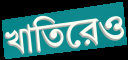
খাতিরেও